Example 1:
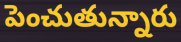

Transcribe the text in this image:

పెంచుతున్నారు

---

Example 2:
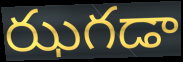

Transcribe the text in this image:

ఝగడా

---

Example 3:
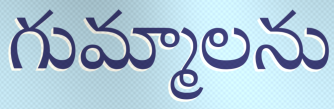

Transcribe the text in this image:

గుమ్మాలను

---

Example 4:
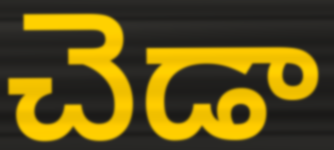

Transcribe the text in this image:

చెడా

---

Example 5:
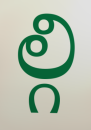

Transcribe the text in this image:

ల్గి